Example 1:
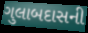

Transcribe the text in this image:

ગુલાબદાસની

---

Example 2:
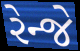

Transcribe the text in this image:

રેન્જે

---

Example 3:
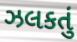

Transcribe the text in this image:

ઝલકતું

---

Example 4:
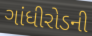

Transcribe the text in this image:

ગાંધીરોડની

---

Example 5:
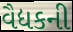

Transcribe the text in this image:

વૈદ્યકની